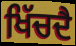
ਖਿੱਚਦੈ